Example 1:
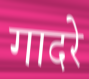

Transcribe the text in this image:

गादरे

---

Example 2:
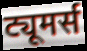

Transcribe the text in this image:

ट्यूमर्स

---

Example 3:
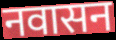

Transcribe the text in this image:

नवासन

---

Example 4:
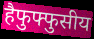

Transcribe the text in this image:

हैफुफ्फुसीय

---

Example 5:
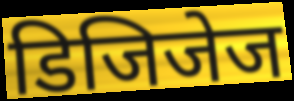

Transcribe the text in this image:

डिजिजेज